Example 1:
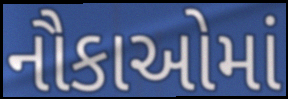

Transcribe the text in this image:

નૌકાઓમાં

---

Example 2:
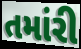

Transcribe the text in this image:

તમાંરી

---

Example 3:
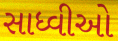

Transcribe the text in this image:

સાધ્વીઓ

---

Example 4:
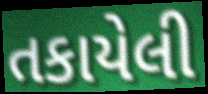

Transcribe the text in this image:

તકાયેલી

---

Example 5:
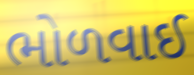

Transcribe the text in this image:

ભોળવાઈ